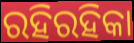
ରହିରହିକା